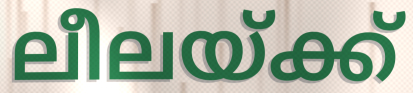
ലീലയ്ക്ക്